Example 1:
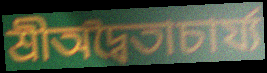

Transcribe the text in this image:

শ্রীঅদ্বৈতাচার্য্য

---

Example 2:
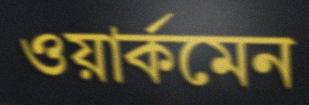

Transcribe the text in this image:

ওয়ার্কমেন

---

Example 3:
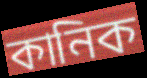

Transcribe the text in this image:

কানিক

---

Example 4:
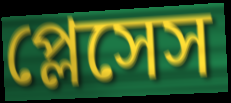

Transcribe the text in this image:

প্লেসেস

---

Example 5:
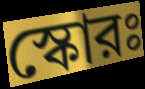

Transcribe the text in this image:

স্কোরঃ